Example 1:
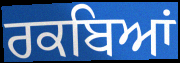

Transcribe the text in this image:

ਰਕਬਿਆਂ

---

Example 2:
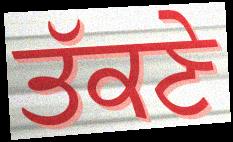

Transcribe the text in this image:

ਤੱਕਣੇ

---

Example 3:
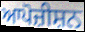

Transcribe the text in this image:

ਆਪੋਜ਼ੀਸ਼ਨ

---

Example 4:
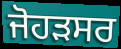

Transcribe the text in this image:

ਜੋਹੜਸਰ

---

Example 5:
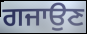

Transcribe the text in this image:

ਗਜਾਉਣ